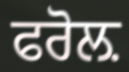
ਫਰੋਲ਼